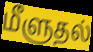
மீளுதல்